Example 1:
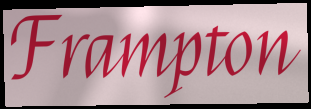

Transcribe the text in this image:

Frampton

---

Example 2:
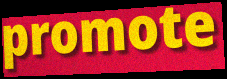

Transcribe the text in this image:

promote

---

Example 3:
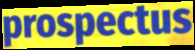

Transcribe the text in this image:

prospectus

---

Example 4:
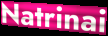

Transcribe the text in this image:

Natrinai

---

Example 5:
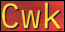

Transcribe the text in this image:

Cwk